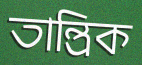
তান্ত্রিক